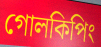
গোলকিপিং